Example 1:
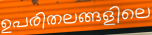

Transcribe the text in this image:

ഉപരിതലങ്ങളിലെ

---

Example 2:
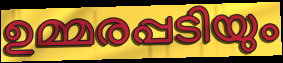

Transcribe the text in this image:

ഉമ്മരപ്പടിയും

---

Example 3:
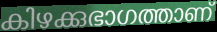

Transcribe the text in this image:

കിഴക്കുഭാഗത്താണ്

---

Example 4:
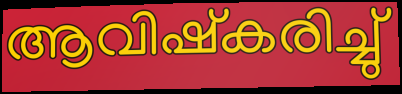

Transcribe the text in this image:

ആവിഷ്കരിച്ചു്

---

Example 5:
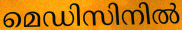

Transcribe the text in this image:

മെഡിസിനിൽ